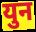
युन